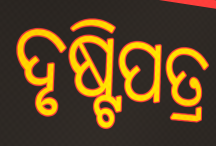
ଦୃଷ୍ଟିପତ୍ର